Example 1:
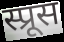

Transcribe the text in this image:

स्प्रूस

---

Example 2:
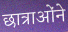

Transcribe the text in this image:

छात्राओंने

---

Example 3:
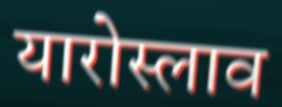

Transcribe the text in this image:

यारोस्लाव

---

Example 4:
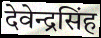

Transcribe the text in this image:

देवेन्द्रसिंह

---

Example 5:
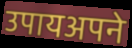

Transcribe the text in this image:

उपायअपने